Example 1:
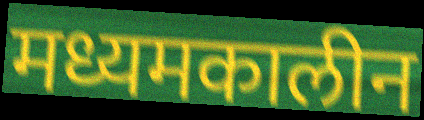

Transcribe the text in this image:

मध्यमकालीन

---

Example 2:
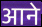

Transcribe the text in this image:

आने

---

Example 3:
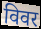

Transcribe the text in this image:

विवर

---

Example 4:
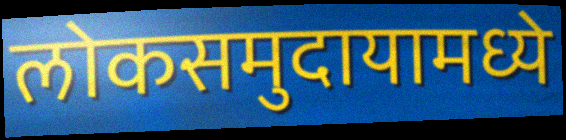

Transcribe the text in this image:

लोकसमुदायामध्ये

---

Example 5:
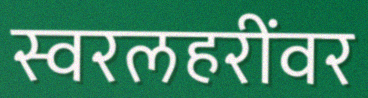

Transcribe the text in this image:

स्वरलहरींवर